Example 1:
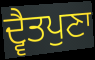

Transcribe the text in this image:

ਦ੍ਵੈਤਪੁਣਾ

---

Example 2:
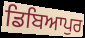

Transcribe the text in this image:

ਡਿਬਿਆਪੁਰ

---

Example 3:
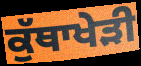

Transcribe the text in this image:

ਕੁੱਥਾਖੇੜੀ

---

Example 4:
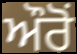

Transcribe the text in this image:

ਔਰੋਂ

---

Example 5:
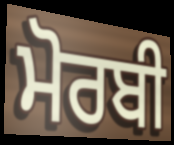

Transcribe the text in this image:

ਮੋਰਬੀ